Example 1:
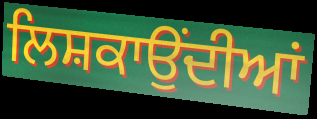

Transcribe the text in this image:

ਲਿਸ਼ਕਾਉਂਦੀਆਂ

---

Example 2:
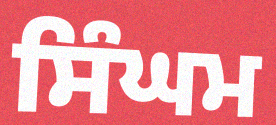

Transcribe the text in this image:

ਸਿੰਘਮ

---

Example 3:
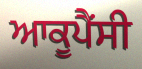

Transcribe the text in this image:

ਆਕੂਪੈਂਸੀ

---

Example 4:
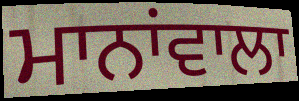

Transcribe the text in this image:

ਮਾਨਾਂਵਾਲਾ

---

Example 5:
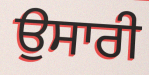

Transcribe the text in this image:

ਉਸਾਰੀ